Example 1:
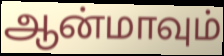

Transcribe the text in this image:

ஆன்மாவும்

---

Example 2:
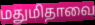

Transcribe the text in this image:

மதுமிதாவை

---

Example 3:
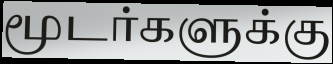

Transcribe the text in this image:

மூடர்களுக்கு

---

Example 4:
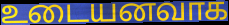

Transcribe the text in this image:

உடையனவாக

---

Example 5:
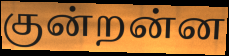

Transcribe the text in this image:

குன்றன்ன